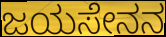
ಜಯಸೇನನ